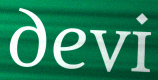
devi